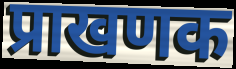
प्राखणक